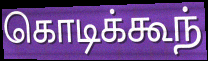
கொடிக்கூந்